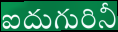
ఐదుగురినీ